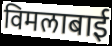
विमलाबाई